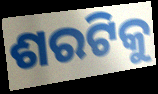
ଶରଟିକୁ